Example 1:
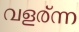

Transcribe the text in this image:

വളര്ന്ന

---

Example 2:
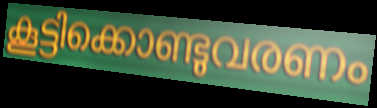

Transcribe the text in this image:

കൂട്ടിക്കൊണ്ടുവരണം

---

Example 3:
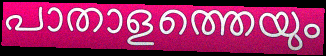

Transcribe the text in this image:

പാതാളത്തെയും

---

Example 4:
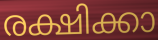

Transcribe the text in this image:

രക്ഷിക്കാ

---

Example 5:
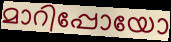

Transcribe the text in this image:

മാറിപ്പോയോ